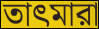
তাৎমারা